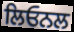
ਲਿਓਨਲ